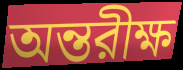
অন্তরীক্ষ